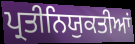
ਪ੍ਰਤੀਨਿਯੁਕਤੀਆਂ